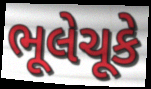
ભૂલેચૂકે